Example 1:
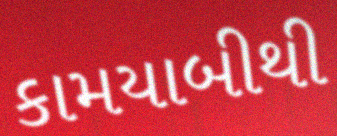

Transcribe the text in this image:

કામયાબીથી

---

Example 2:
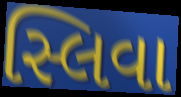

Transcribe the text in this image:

સ્લિવા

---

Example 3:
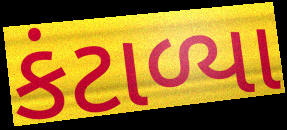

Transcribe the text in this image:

કંટાળ્યા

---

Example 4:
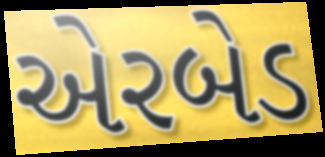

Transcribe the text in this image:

એરબેડ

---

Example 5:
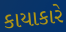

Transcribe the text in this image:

કાયાકારે